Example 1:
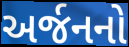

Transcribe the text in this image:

અર્જનનો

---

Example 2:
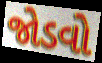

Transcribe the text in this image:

જોડવો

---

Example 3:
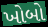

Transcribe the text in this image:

ખોબો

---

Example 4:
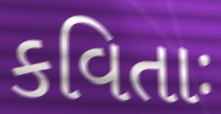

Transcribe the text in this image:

કવિતાઃ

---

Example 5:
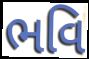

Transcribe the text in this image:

ભવિ